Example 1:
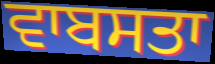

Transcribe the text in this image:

ਵਾਬਸਤਾ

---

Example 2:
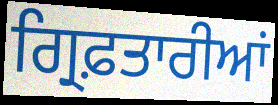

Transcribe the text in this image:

ਗ੍ਰਿਫ਼ਤਾਰੀਆਂ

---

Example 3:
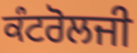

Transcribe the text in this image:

ਕੰਟਰੋਲਜੀ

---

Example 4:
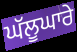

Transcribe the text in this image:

ਘੱਲੂਘਾਰੇ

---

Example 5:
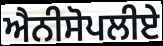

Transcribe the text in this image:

ਐਨੀਸੋਪਲੀਏ